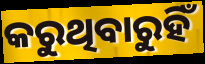
କରୁଥିବାରୁହିଁ